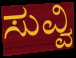
ಸುವ್ವಿ